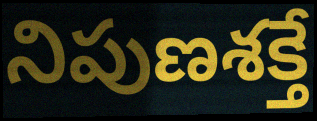
నిపుణశక్తే